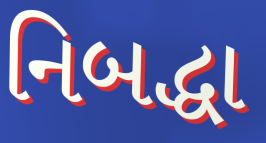
નિબદ્ધા